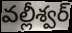
వల్లీశ్వర్